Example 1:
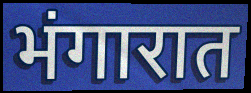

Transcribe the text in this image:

भंगारात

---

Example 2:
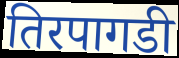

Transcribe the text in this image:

तिरपागडी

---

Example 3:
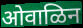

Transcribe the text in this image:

ओवाळिन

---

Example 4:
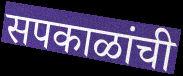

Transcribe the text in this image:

सपकाळांची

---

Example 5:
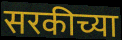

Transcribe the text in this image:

सरकीच्या